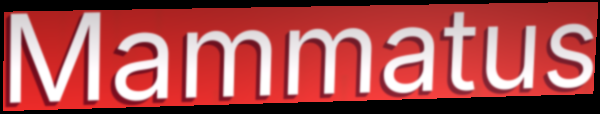
Mammatus